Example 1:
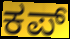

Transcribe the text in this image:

ಕಪ್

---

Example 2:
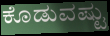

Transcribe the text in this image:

ಕೊಡುವಷ್ಟು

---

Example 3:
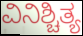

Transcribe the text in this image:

ವಿನಿಶ್ಚಿತ್ಯ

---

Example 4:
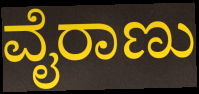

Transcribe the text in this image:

ವೈರಾಣು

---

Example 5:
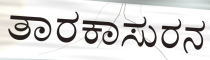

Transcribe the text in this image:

ತಾರಕಾಸುರನ